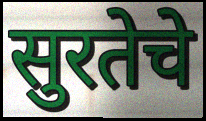
सुरतेचे